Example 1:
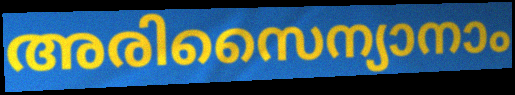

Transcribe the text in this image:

അരിസൈന്യാനാം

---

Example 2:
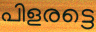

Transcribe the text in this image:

പിളരട്ടെ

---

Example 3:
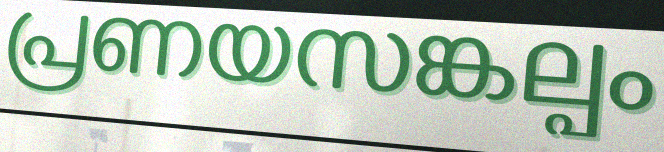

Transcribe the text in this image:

പ്രണയസങ്കല്പം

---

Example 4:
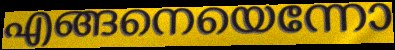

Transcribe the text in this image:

എങ്ങനെയെന്നോ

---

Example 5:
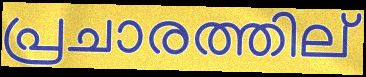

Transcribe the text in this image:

പ്രചാരത്തില്